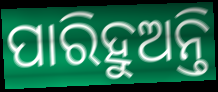
ପାରିହୁଅନ୍ତି